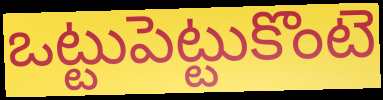
ఒట్టుపెట్టుకొంటె